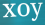
xoy